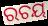
ରଚୟ